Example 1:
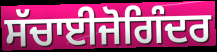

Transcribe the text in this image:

ਸੱਚਾਈਜੋਗਿੰਦਰ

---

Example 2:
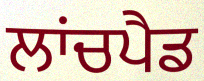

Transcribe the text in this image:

ਲਾਂਚਪੈਡ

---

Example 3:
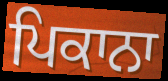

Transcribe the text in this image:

ਪਿਕਾਨਾ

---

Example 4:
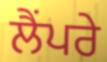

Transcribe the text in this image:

ਲੈਂਪਰੇ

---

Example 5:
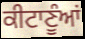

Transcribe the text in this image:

ਕੀਟਾਣੂੰਆਂ